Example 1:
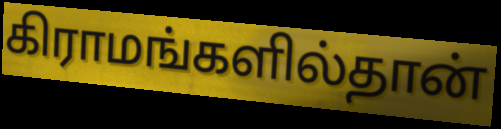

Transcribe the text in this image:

கிராமங்களில்தான்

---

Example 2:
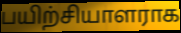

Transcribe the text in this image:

பயிற்சியாளராக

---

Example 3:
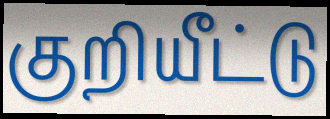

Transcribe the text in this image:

குறியீட்டு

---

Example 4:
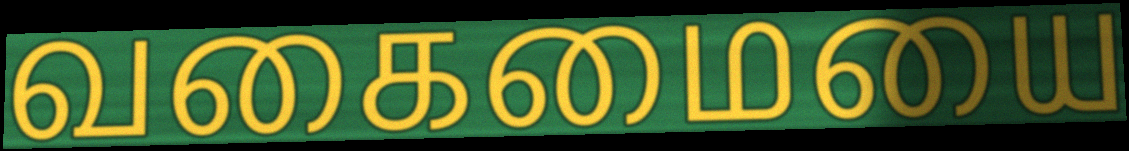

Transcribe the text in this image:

வகைமையை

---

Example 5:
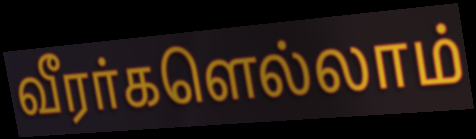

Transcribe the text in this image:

வீரர்களெல்லாம்